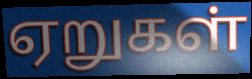
ஏறுகள்